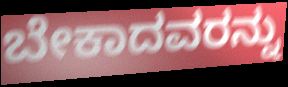
ಬೇಕಾದವರನ್ನು